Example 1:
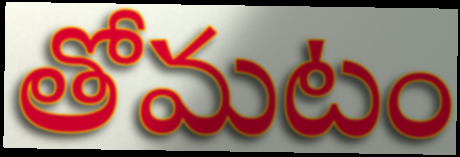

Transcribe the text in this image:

తోమటం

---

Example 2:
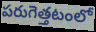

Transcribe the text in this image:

పరుగెత్తటంలో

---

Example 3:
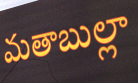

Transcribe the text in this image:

మతాబుల్లా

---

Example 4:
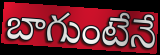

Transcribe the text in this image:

బాగుంటేనే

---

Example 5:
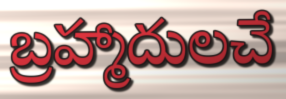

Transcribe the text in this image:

బ్రహ్మాదులచే